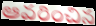
ఆవరించిన